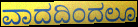
ವಾದದಿಂದಲೂ